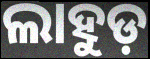
ଲାହୁଡ଼